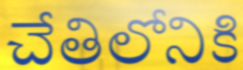
చేతిలోనికి